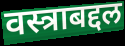
वस्त्राबद्दल